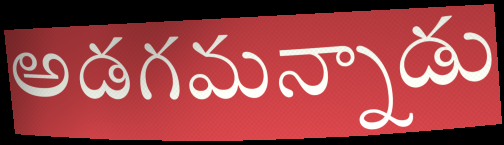
అడగమన్నాడు